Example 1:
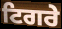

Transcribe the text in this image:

ਟਿਗਰੇ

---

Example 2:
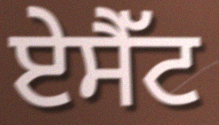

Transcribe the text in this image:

ਏਸੈੱਟ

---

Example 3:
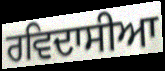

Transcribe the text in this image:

ਰਵਿਦਾਸੀਆ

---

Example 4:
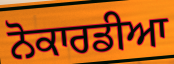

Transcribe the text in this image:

ਨੋਕਾਰਡੀਆ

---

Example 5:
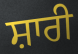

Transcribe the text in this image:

ਸ਼ਾਰੀ